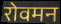
रोवमन